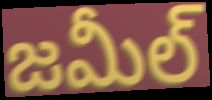
జమీల్